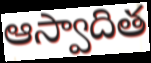
ఆస్వాదిత